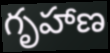
గృహాణ